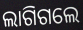
ଲାଗିଗଲେ